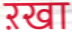
ऱखा